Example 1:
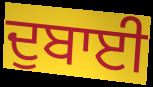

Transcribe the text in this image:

ਦੁਬਾਈ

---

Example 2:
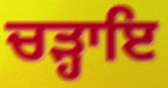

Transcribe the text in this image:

ਚੜ੍ਹਾਇ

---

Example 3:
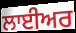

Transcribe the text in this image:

ਲਾਈਅਰ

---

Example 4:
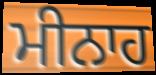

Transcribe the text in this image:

ਮੀਨਾਹ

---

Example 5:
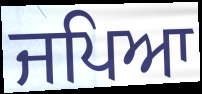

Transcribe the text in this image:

ਜਪਿਆ